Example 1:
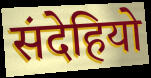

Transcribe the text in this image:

संदेहियो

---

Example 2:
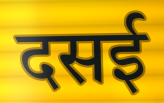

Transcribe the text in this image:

दसई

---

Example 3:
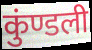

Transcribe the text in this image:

कुंण्डली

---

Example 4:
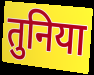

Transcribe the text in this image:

तुनिया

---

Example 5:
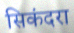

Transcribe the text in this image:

सिकंदरा